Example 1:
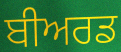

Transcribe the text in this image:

ਬੀਅਰਡ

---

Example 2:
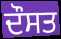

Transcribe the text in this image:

ਦੌਸਤ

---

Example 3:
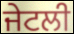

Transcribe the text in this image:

ਜੇਟਲੀ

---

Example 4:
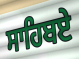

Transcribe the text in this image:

ਸਾਹਿਬਏ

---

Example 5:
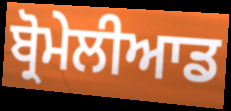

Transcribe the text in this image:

ਬ੍ਰੋਮੇਲੀਆਡ